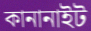
কানানাইট